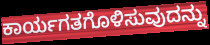
ಕಾರ್ಯಗತಗೊಳಿಸುವುದನ್ನು